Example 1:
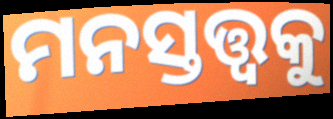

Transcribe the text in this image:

ମନସ୍ତତ୍ତ୍ୱକୁ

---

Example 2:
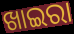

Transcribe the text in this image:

ଖାଇରା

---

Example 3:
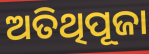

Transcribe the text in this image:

ଅତିଥିପୂଜା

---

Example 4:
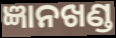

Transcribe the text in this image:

ଜ୍ଞାନଖଣ୍ଡ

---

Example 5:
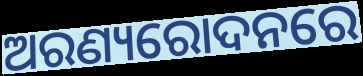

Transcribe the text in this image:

ଅରଣ୍ୟରୋଦନରେ